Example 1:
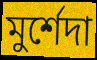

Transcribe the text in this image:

মুর্শেদা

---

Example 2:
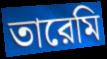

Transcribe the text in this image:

তারেমি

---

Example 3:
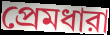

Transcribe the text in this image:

প্রেমধারা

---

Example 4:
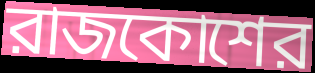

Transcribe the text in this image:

রাজকোশের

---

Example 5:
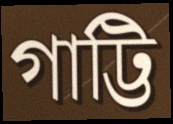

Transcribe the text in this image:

গাট্টি